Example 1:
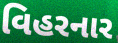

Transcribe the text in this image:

વિહરનાર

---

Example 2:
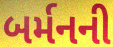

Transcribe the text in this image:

બર્મનની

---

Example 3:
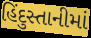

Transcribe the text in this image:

હિંદુસ્તાનીમાં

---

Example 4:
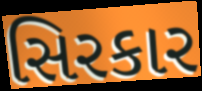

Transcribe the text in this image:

સિરકાર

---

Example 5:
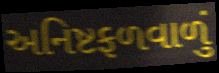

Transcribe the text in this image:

અનિષ્ટફળવાળું